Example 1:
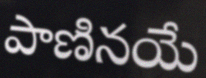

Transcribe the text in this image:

పాణినయే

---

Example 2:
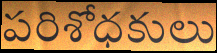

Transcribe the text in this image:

పరిశోధకులు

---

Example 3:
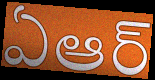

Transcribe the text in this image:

ఏఆర్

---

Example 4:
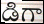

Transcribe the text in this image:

డిగా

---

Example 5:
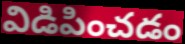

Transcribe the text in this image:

విడిపించడం